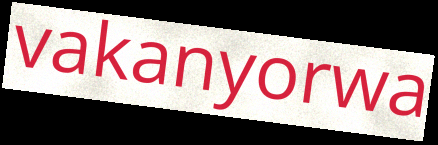
vakanyorwa